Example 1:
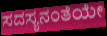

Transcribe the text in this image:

ಸದಸ್ಯನಂತೆಯೇ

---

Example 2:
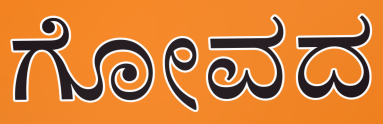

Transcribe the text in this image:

ಗೋವದ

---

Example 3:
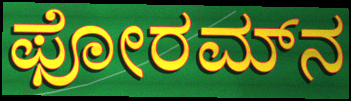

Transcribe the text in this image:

ಫೋರಮ್‌ನ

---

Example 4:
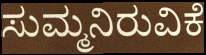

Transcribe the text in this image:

ಸುಮ್ಮನಿರುವಿಕೆ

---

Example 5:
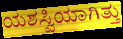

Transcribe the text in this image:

ಯಶಸ್ವಿಯಾಗಿತ್ತು